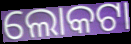
ଲୋକଟା